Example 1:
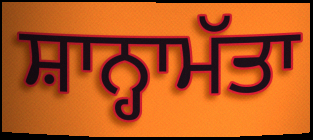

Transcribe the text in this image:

ਸ਼ਾਨ੍ਹਾਮੱਤਾ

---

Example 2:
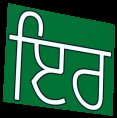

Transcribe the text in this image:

ਇਰ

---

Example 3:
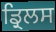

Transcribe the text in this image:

ਡ੍ਰਿਲਸ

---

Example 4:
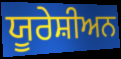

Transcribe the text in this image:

ਯੂਰੇਸ਼ੀਅਨ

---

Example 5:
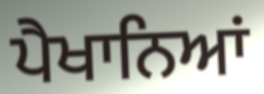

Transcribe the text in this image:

ਪੈਖਾਨਿਆਂ